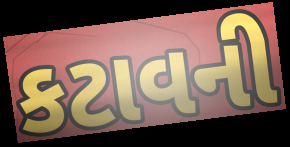
કટાવની